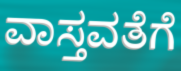
ವಾಸ್ತವತೆಗೆ